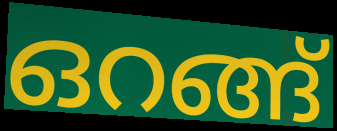
ഒറങ്ങ്